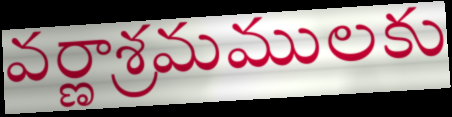
వర్ణాశ్రమములకు